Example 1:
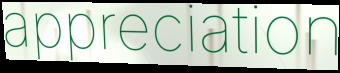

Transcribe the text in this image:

appreciation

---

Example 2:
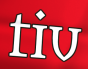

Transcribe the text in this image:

tiu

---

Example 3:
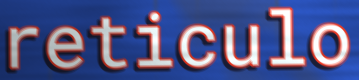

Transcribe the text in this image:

reticulo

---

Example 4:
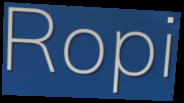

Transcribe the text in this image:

Ropi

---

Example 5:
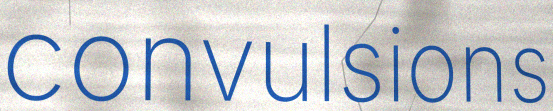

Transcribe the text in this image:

convulsions